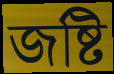
জষ্টি